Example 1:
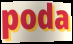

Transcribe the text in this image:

poda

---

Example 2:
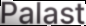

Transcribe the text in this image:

Palast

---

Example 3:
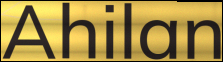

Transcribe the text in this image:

Ahilan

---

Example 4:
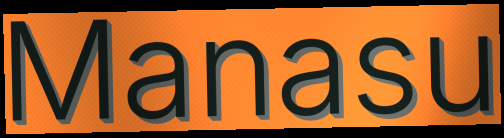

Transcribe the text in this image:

Manasu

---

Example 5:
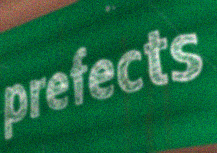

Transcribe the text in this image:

prefects